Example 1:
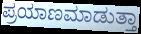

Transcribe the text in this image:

ಪ್ರಯಾಣಮಾಡುತ್ತಾ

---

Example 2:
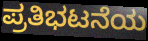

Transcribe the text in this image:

ಪ್ರತಿಭಟನೆಯ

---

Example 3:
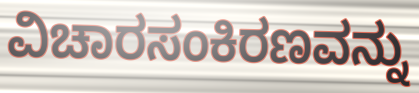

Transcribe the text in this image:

ವಿಚಾರಸಂಕಿರಣವನ್ನು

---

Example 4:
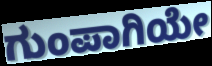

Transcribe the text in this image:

ಗುಂಪಾಗಿಯೇ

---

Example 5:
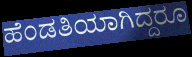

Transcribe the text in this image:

ಹೆಂಡತಿಯಾಗಿದ್ದರೂ